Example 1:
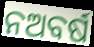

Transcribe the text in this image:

ନଅବର୍ଷ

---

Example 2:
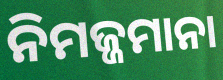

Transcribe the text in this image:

ନିମଜ୍ଜମାନା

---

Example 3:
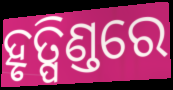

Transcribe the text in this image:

ହୃତ୍ପିଣ୍ଡରେ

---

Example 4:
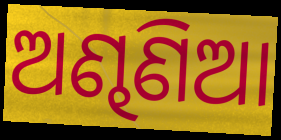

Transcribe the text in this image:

ଅଣ୍ଢଣିଆ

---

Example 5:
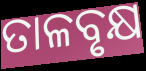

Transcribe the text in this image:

ତାଳବୃକ୍ଷ